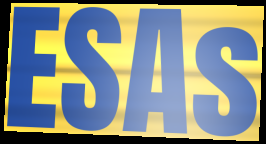
ESAs